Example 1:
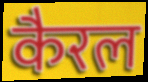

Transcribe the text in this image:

कैरल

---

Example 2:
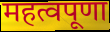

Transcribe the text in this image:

महत्वपूणा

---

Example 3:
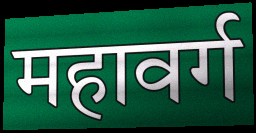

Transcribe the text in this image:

महावर्ग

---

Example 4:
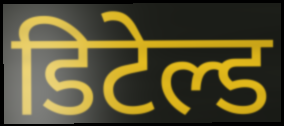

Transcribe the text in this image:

डिटेल्ड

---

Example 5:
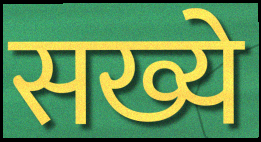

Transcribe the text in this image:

सख्ये